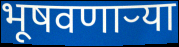
भूषवणाऱ्या